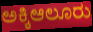
ಅಕ್ಕಿಆಲೂರು